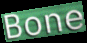
Bone